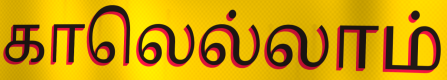
காலெல்லாம்